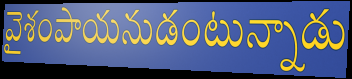
వైశంపాయనుడంటున్నాడు